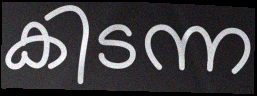
കിടന്ന